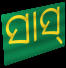
ସାସ୍